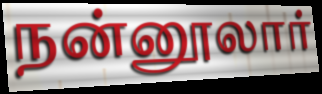
நன்னூலார்